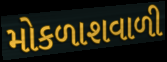
મોકળાશવાળી